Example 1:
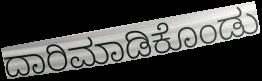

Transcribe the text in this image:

ದಾರಿಮಾಡಿಕೊಂಡು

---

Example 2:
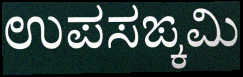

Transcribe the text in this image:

ಉಪಸಙ್ಕಮಿ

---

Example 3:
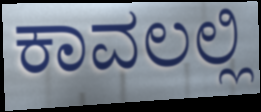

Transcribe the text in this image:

ಕಾವಲಲ್ಲಿ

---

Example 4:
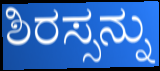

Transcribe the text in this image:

ಶಿರಸ್ಸನ್ನು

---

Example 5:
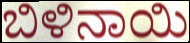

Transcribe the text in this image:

ಬಿಳಿನಾಯಿ